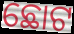
ଛୋଟ